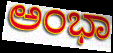
ಅಂಭಾ